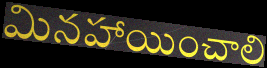
మినహాయించాలి